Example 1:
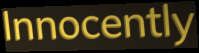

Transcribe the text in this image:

Innocently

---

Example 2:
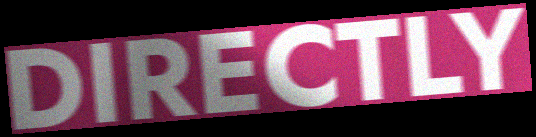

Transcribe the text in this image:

DIRECTLY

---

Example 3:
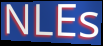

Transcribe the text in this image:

NLEs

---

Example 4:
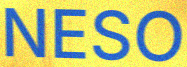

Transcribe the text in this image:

NESO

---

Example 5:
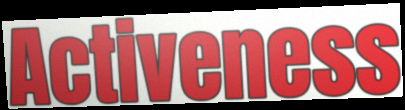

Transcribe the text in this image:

Activeness